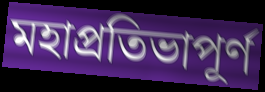
মহাপ্রতিভাপূর্ণ